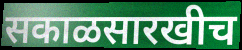
सकाळसारखीच